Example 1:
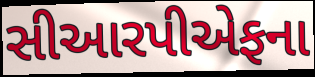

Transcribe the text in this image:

સીઆરપીએફના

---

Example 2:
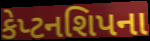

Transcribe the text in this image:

કેપ્ટનશિપના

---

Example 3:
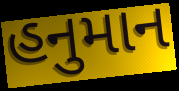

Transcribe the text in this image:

હનુમાન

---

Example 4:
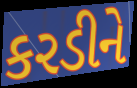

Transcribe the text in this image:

કરડીને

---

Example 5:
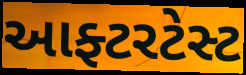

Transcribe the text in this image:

આફ્ટરટેસ્ટ